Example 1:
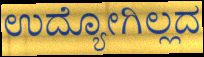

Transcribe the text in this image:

ಉದ್ಯೋಗಿಲ್ಲದ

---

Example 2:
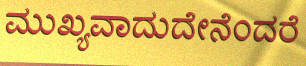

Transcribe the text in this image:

ಮುಖ್ಯವಾದುದೇನೆಂದರೆ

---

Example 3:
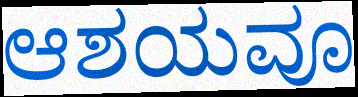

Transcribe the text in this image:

ಆಶಯವೂ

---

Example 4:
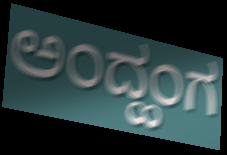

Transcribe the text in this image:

ಅಂದ್ಹಂಗ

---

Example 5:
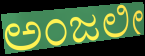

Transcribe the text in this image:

ಅಂಜಲೀ